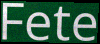
Fete